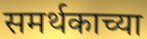
समर्थकाच्या